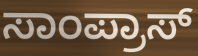
ಸಾಂಪ್ರಾಸ್